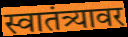
स्वातंत्र्यावर